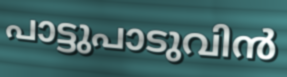
പാട്ടുപാടുവിൻ